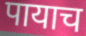
पायाच